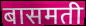
बासमती